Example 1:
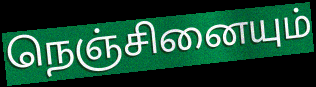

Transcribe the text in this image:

நெஞ்சினையும்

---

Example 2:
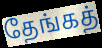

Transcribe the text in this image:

தேங்கத்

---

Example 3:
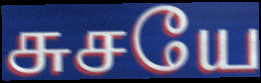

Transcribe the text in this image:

சுசயே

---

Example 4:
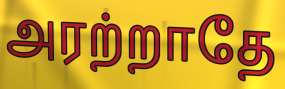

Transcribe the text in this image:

அரற்றாதே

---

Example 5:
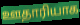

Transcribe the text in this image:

ஊதாரியாக